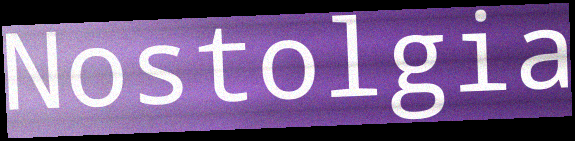
Nostolgia